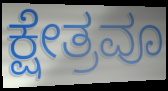
ಕ್ಷೇತ್ರವೂ